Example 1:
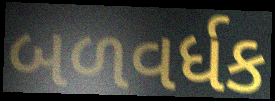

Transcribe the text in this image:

બળવર્ધક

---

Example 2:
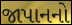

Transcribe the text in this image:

જાપાનનો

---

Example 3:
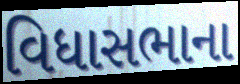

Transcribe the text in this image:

વિધાસભાના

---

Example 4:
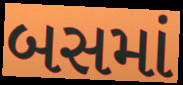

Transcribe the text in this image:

બસમાં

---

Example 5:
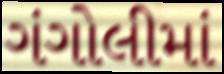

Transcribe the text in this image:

ગંગોલીમાં